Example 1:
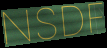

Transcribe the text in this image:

NSDF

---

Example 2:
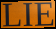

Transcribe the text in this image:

LIE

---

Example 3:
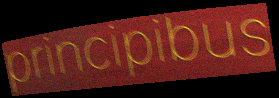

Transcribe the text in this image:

principibus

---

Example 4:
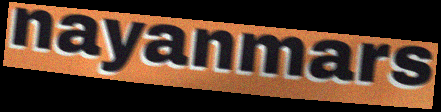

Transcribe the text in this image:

nayanmars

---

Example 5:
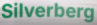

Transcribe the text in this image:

Silverberg